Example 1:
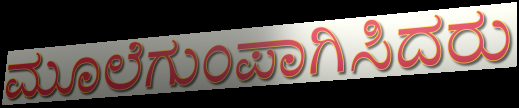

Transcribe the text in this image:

ಮೂಲೆಗುಂಪಾಗಿಸಿದರು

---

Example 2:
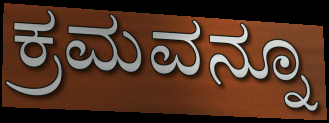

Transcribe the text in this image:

ಕ್ರಮವನ್ನೂ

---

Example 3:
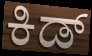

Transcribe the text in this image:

ಕಿಡ್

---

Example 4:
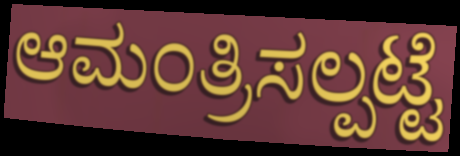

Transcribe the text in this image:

ಆಮಂತ್ರಿಸಲ್ಪಟ್ಟೆ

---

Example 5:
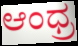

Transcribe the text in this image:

ಆಂಧ್ರ